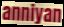
anniyan